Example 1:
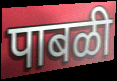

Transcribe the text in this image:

पाबळी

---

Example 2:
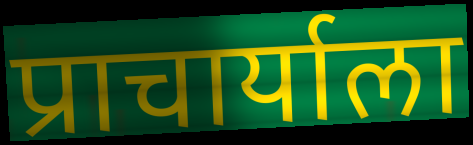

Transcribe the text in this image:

प्राचार्याला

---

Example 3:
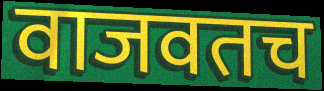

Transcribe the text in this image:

वाजवतच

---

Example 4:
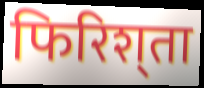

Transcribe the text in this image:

फिरिश्ता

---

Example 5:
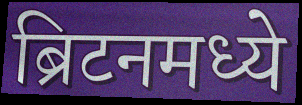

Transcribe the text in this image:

ब्रिटनमध्ये